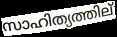
സാഹിത്യത്തില്